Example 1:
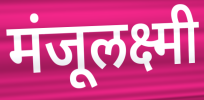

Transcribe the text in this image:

मंजूलक्ष्मी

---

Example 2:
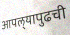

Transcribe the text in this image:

आपल्यापुढची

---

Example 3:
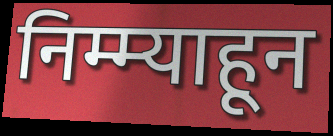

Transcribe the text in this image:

निम्म्याहून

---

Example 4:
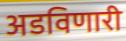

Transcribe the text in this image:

अडविणारी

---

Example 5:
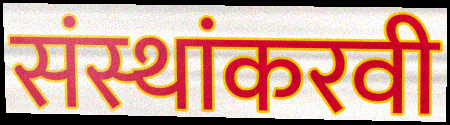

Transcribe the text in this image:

संस्थांकरवी